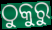
ଠୁକୁରୁ